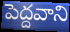
పెద్దవాని